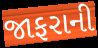
જાફરાની